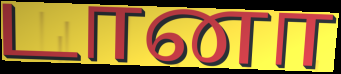
டானா